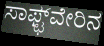
ಸಾಫ್ಟ್‌ವೇರಿನ